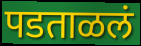
पडताळलं